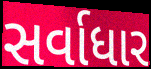
સર્વાધાર